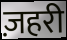
ज़हरी